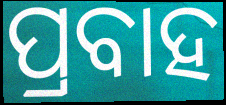
ପ୍ରବାହ